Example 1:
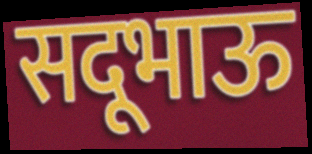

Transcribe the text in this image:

सदूभाऊ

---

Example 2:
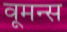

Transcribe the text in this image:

वूमन्स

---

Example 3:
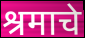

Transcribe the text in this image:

श्रमाचे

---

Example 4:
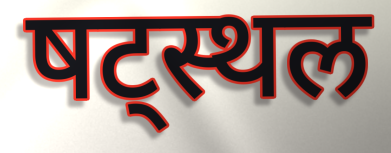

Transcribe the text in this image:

षट्स्थल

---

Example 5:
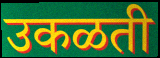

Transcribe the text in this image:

उकळती